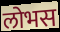
लोभस